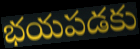
భయపడకు